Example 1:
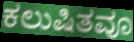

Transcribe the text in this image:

ಕಲುಷಿತವೂ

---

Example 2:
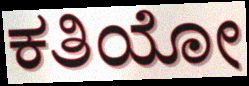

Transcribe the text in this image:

ಕತಿಯೋ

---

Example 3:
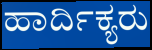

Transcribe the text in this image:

ಹಾರ್ದಿಕ್ಯರು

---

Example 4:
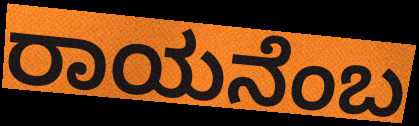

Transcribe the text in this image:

ರಾಯನೆಂಬ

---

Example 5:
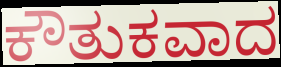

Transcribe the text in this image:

ಕೌತುಕವಾದ